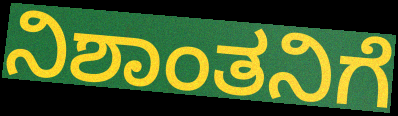
ನಿಶಾಂತನಿಗೆ